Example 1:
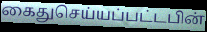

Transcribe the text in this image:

கைதுசெய்யப்பட்டபின்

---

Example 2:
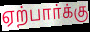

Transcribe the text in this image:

ஏற்பார்க்கு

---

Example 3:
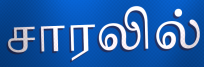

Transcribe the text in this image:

சாரலில்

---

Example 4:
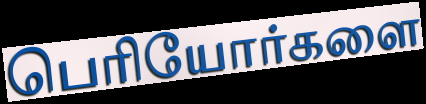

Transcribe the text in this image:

பெரியோர்களை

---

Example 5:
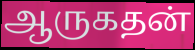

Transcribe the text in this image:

ஆருகதன்